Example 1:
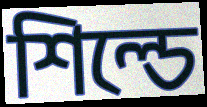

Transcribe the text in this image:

শিল্ডে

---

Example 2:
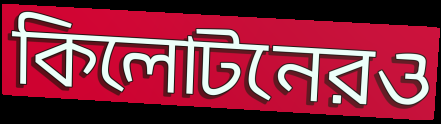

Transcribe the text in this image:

কিলোটনেরও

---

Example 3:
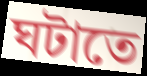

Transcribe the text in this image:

ঘটাতে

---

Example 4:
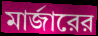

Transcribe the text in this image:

মার্জারের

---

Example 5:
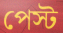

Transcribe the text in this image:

পেস্ট